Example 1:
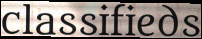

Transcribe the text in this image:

classifieds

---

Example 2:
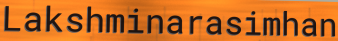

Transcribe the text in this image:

Lakshminarasimhan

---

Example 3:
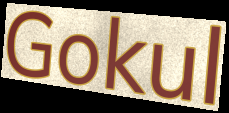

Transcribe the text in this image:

Gokul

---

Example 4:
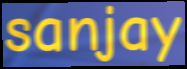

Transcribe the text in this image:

sanjay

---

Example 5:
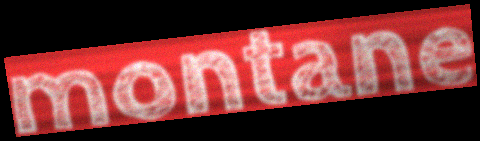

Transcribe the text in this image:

montane